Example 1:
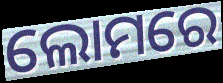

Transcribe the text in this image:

ଲୋମରେ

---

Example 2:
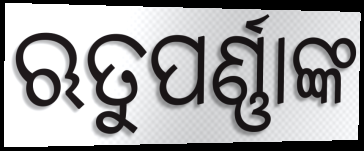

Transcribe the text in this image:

ଋତୁପର୍ଣ୍ଣାଙ୍କ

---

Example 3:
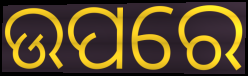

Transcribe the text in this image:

ଉପରେ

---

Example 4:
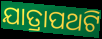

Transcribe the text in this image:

ଯାତ୍ରାପଥଟି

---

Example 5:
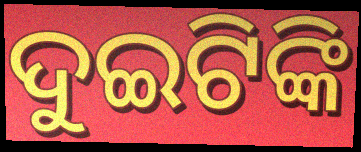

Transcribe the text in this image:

ଦୁଇଟିଙ୍କି